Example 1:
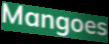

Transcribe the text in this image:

Mangoes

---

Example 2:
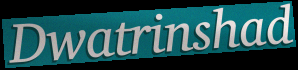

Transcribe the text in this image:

Dwatrinshad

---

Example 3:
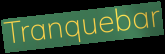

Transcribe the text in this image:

Tranquebar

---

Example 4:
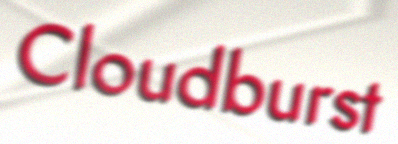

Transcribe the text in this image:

Cloudburst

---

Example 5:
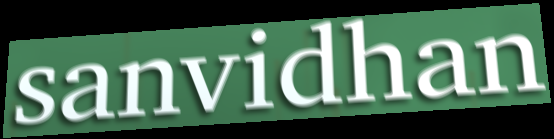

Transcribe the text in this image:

sanvidhan